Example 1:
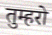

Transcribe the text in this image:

तुम्हरो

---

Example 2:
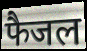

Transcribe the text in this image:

फैजल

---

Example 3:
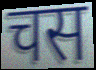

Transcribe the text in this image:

चस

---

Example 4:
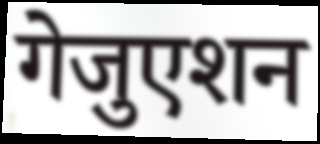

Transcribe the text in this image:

गेजुएशन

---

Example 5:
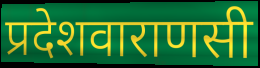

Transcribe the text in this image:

प्रदेशवाराणसी